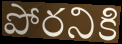
పోరనికి